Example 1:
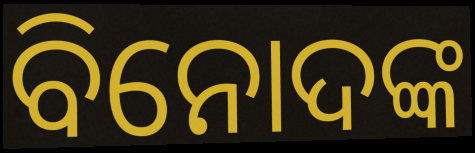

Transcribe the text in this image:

ବିନୋଦଙ୍କ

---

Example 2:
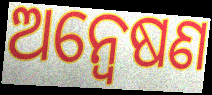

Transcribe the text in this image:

ଅନ୍ବେଷଣ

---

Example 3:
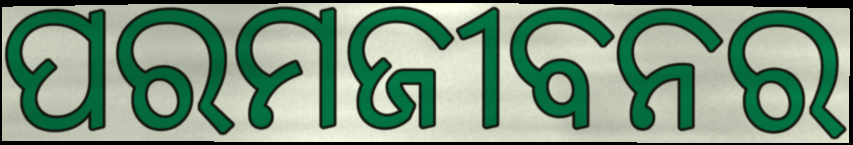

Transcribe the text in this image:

ପରମଜୀବନର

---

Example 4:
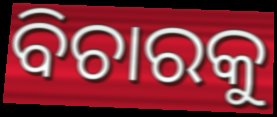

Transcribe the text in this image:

ବିଚାରକୁ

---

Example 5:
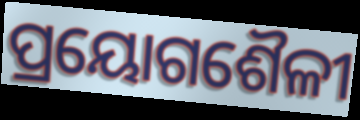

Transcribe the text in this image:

ପ୍ରୟୋଗଶୈଳୀ